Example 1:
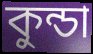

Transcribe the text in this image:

কুন্ডা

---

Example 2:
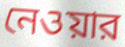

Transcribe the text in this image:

নেওয়ার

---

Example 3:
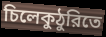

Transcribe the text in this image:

চিলেকুঠুরিতে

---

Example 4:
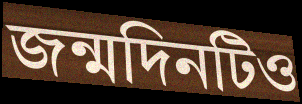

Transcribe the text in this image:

জন্মদিনটিও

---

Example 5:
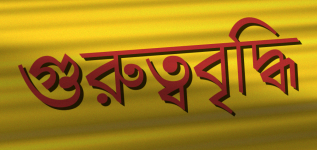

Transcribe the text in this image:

গুরুত্ববৃদ্ধি